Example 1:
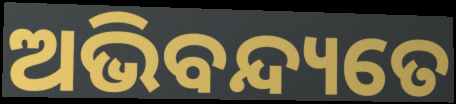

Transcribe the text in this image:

ଅଭିବନ୍ଦ୍ୟତେ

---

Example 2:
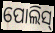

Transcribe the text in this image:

ପୋଲିସ୍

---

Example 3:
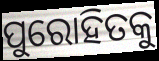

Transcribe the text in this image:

ପୁରୋହିତକୁ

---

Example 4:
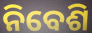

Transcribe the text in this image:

ନିବେଶି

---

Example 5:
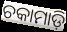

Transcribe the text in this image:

ଚକାମାଡ଼ି